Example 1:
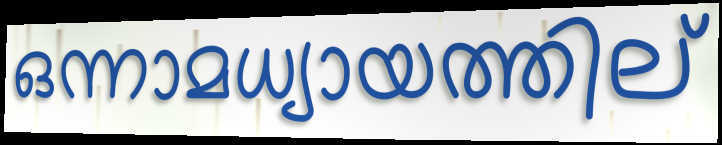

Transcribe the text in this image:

ഒന്നാമധ്യായത്തില്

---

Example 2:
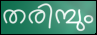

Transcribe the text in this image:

തരിമ്പും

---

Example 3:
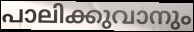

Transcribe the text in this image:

പാലിക്കുവാനും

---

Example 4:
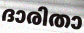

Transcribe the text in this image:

ദാരിതാ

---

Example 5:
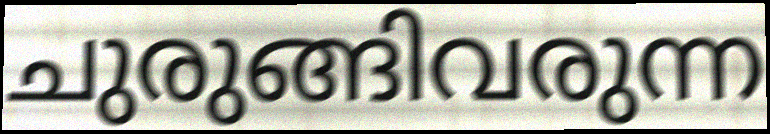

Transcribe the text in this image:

ചുരുങ്ങിവരുന്ന